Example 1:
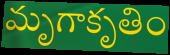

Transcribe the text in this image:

మృగాకృతిం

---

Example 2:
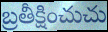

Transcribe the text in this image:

బ్రతీక్షించుచు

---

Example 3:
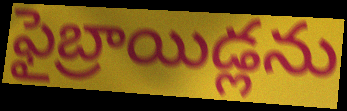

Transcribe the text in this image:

ఫైబ్రాయిడ్లను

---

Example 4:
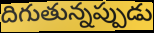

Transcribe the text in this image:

దిగుతున్నప్పుడు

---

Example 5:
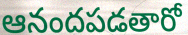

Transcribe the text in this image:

ఆనందపడతారో